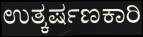
ಉತ್ಕರ್ಷಣಕಾರಿ